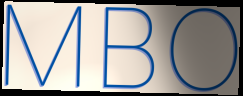
MBO